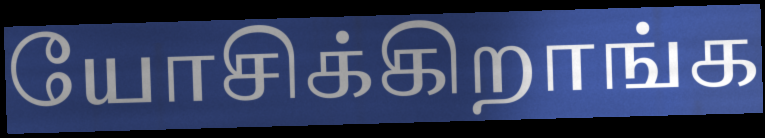
யோசிக்கிறாங்க